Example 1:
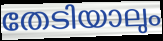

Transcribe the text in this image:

തേടിയാലും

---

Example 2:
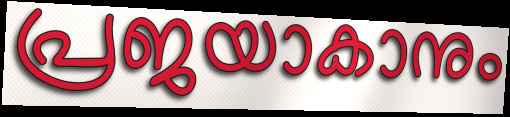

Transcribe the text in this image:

പ്രജയാകാനും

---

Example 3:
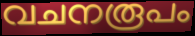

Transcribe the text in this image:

വചനരൂപം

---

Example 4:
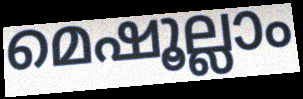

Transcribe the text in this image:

മെഷൂല്ലാം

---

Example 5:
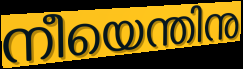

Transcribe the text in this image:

നീയെന്തിനു